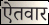
ऐतवार